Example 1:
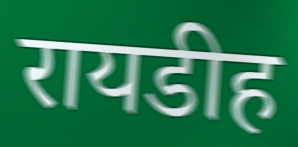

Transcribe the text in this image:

रायडीह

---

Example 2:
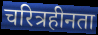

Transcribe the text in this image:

चरित्रहीनता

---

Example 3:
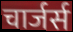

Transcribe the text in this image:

चार्जर्स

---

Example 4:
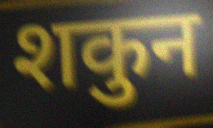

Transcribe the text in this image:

शकुन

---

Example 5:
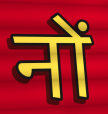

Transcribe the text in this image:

नों